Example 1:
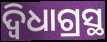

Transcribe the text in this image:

ଦ୍ବିଧାଗ୍ରସ୍ଥ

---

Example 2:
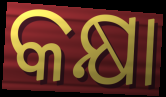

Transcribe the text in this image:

କକ୍ଷା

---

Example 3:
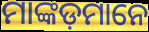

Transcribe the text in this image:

ମାଙ୍କଡ଼ମାନେ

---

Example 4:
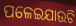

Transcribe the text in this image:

ପଳେଇଯାଉଚି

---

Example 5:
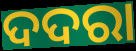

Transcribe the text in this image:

ଦଦରା